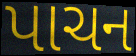
પાચન